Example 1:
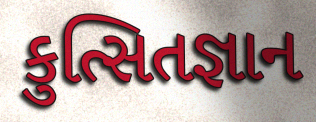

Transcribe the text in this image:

કુત્સિતજ્ઞાન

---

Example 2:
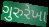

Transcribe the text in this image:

ગુરુરેખા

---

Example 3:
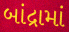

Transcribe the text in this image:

બાંદ્રામાં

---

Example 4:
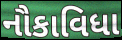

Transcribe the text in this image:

નૌકાવિધા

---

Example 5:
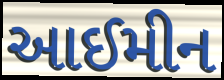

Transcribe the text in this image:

આઈમીન